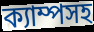
ক্যাম্পসহ